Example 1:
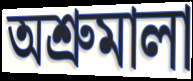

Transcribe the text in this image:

অশ্রুমালা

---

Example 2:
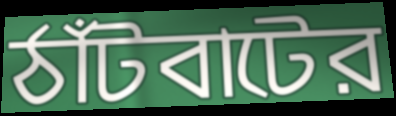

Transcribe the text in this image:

ঠাঁটবাটের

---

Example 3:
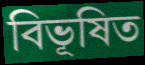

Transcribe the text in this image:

বিভূষিত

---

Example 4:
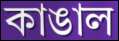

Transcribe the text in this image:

কাঙাল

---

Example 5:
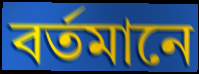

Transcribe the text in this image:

বর্তমানে